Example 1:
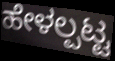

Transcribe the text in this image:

ಹೇಳಲ್ಪಟ್ಟ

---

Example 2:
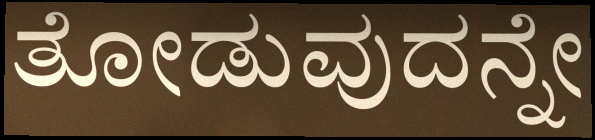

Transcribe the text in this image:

ತೋಡುವುದನ್ನೇ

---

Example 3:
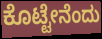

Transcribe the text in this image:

ಕೊಟ್ಟೇನೆಂದು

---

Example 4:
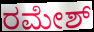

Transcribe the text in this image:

ರಮೇಶ್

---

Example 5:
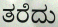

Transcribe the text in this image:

ತರೆದು